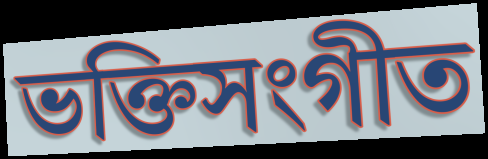
ভক্তিসংগীত